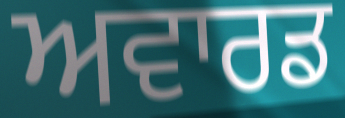
ਅਵਾਰਡ